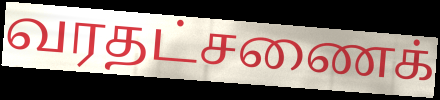
வரதட்சணைக்